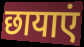
छायाएं